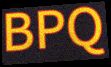
BPQ